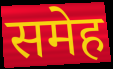
समेह